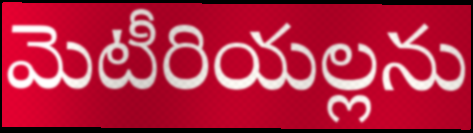
మెటీరియల్లను